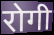
रोगी